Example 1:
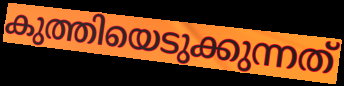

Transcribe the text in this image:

കുത്തിയെടുക്കുന്നത്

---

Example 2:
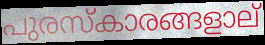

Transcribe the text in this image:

പുരസ്കാരങ്ങളാല്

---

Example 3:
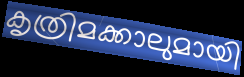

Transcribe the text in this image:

കൃത്രിമക്കാലുമായി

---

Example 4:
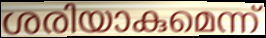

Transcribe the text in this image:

ശരിയാകുമെന്ന്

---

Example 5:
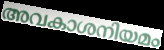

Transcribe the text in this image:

അവകാശനിയമം